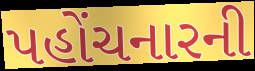
પહોંચનારની